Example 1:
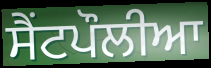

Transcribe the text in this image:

ਸੈਂਟਪੌਲੀਆ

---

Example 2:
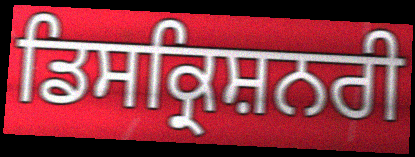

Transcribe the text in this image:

ਡਿਸਕ੍ਰਿਸ਼ਨਰੀ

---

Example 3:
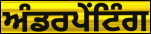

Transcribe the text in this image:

ਅੰਡਰਪੇਂਟਿੰਗ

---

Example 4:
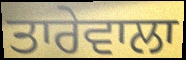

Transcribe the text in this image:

ਤਾਰੇਵਾਲਾ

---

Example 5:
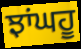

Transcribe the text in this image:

ਝਾਂਘਹੂ